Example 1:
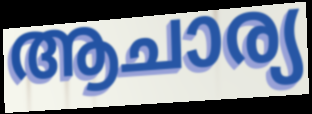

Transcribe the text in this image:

ആചാര്യ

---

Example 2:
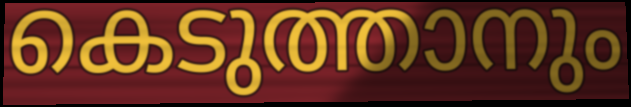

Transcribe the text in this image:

കെടുത്താനും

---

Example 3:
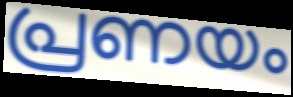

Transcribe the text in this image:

പ്രണയം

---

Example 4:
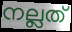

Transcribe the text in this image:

നല്ലത്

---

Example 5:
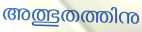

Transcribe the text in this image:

അത്ഭുതത്തിനു